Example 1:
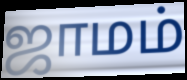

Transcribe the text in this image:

ஜாமம்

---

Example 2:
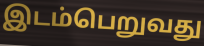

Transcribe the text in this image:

இடம்பெறுவது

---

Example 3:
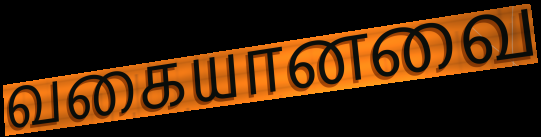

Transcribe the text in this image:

வகையானவை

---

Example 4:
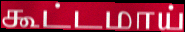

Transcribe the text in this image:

கூட்டமாய்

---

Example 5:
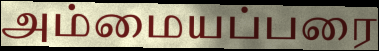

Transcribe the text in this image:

அம்மையப்பரை